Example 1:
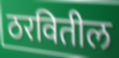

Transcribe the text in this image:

ठरवितील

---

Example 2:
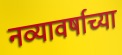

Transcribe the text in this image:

नव्यावर्षाच्या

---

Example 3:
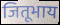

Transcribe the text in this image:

जितूभाय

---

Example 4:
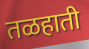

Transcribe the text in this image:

तळहाती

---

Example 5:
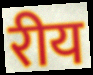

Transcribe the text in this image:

रीय